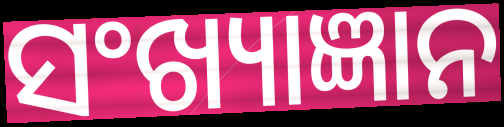
ସଂଖ୍ୟାଜ୍ଞାନ